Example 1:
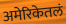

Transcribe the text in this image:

अमेरिकेतलं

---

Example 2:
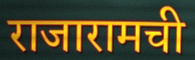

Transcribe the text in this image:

राजारामची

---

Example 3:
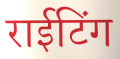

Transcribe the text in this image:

राईटिंग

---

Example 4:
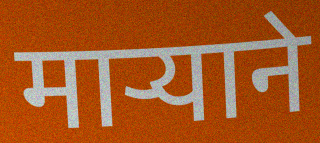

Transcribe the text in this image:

मार्‍याने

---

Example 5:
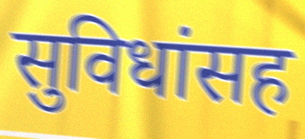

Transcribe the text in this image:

सुविधांसह